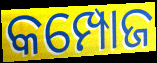
କମ୍ପୋଜ